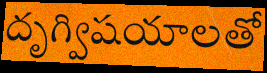
దృగ్విషయాలతో